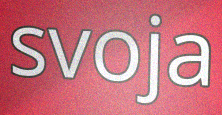
svoja